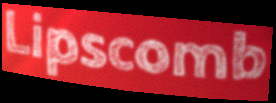
Lipscomb